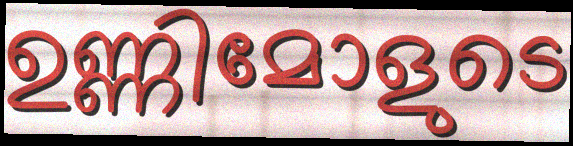
ഉണ്ണിമോളുടെ